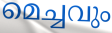
മെച്ചവും